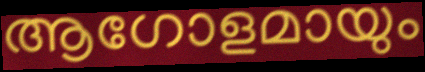
ആഗോളമായും